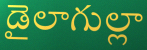
డైలాగుల్లా